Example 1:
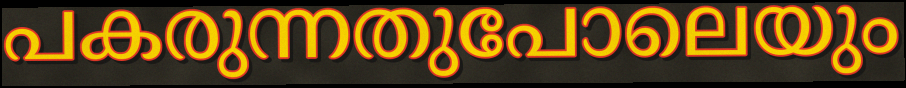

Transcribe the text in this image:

പകരുന്നതുപോലെയും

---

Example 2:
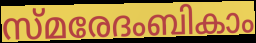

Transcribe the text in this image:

സ്മരേദംബികാം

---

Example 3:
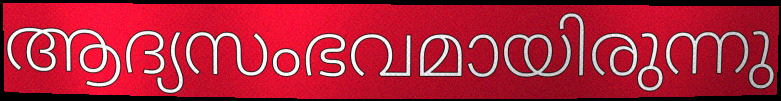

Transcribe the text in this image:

ആദ്യസംഭവമായിരുന്നു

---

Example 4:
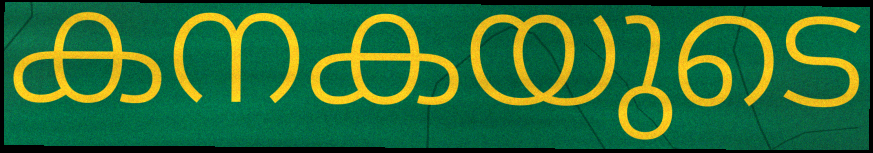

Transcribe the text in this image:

കനകയുടെ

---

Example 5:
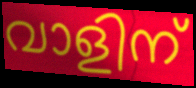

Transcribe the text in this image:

വാളിന്